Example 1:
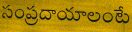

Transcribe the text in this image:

సంప్రదాయాలంటే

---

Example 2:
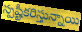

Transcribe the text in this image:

స్పష్టీకరిస్తున్నాయి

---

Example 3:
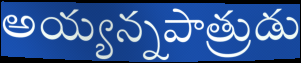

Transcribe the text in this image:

అయ్యన్నపాత్రుడు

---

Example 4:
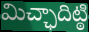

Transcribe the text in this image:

మిచ్ఛాదిట్ఠి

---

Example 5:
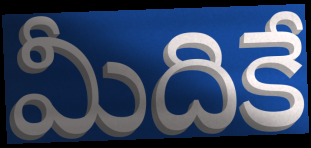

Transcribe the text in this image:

మీదికే